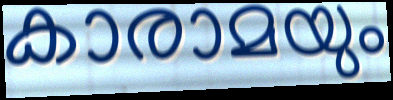
കാരാമയും